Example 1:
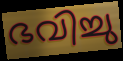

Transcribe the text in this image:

ഭവിച്ചു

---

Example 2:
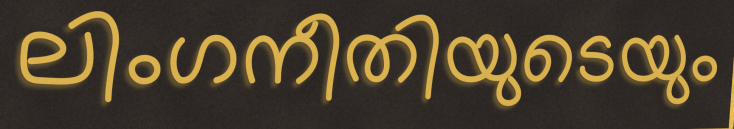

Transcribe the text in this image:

ലിംഗനീതിയുടെയും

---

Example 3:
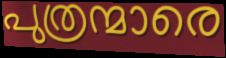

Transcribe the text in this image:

പുത്രന്മാരെ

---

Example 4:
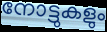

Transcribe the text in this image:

നോട്ടുകളും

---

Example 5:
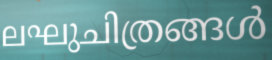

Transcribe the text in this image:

ലഘുചിത്രങ്ങൾ